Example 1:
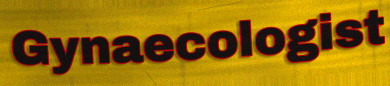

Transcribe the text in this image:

Gynaecologist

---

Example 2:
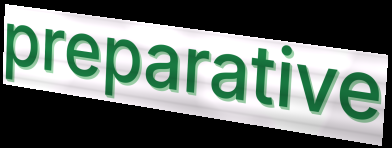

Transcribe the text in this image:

preparative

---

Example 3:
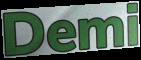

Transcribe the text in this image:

Demi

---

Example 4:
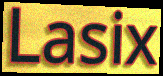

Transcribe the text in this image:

Lasix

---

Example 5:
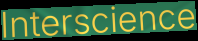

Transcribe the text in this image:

Interscience